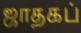
ஜாதகப்